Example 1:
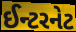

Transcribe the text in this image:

ઈન્ટરનેટ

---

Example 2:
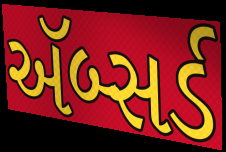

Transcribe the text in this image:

ઍબ્સર્ડ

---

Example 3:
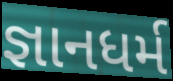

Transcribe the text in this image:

જ્ઞાનધર્મ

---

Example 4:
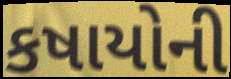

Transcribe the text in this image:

કષાયોની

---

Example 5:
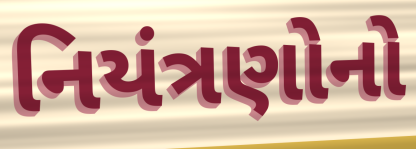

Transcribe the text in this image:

નિયંત્રણોનો